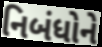
નિબંધોને